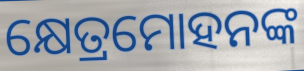
କ୍ଷେତ୍ରମୋହନଙ୍କ